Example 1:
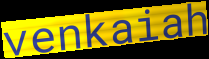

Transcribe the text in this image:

venkaiah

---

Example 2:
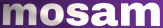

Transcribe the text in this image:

mosam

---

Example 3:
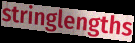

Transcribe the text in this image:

stringlengths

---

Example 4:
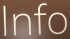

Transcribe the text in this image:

Info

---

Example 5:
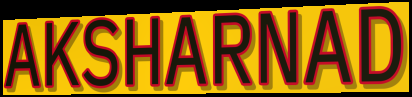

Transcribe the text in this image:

AKSHARNAD